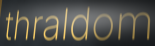
thraldom